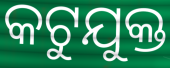
କଟୁଯୁକ୍ତ